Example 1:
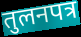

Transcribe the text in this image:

तुलनपत्र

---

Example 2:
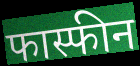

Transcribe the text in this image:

फास्फीन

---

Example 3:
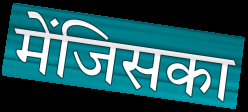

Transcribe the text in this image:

मेंजिसका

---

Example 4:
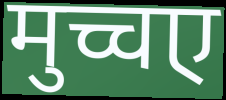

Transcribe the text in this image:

मुच्चए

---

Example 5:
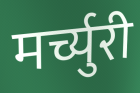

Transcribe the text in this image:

मर्च्युरी